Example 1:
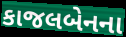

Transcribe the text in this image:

કાજલબેનના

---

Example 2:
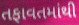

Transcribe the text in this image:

તફાવતમાંથી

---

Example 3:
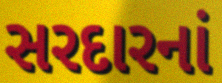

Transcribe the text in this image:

સરદારનાં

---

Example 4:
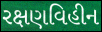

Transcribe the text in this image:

રક્ષણવિહીન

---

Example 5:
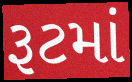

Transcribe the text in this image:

રૂટમાં